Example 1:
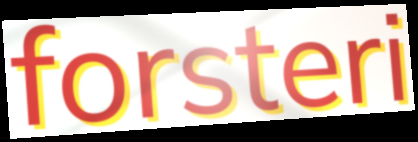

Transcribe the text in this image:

forsteri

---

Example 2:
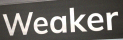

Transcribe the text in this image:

Weaker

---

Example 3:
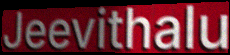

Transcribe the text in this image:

Jeevithalu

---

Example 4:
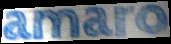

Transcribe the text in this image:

amaro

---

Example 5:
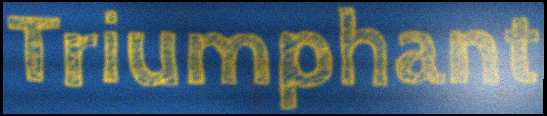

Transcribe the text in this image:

Triumphant